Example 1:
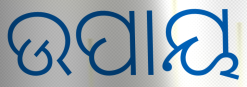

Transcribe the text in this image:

ଉପାୟ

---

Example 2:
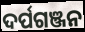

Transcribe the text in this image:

ଦର୍ପଗଞ୍ଜନ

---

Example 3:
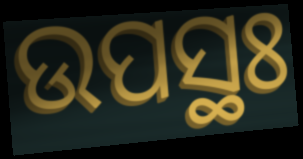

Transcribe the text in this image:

ଉପସ୍ଥଃ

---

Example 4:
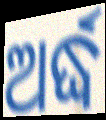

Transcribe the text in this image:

ଅର୍ଦ୍ଧ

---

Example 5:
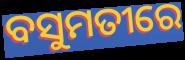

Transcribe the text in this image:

ବସୁମତୀରେ